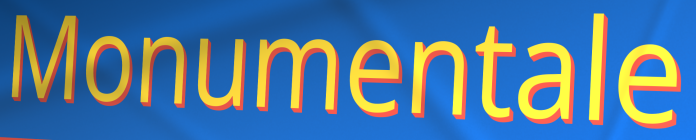
Monumentale